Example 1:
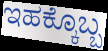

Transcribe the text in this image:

ಇಹಕ್ಕೊಬ್ಬ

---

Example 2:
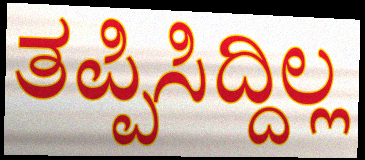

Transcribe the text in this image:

ತಪ್ಪಿಸಿದ್ದಿಲ್ಲ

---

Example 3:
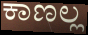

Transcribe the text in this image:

ಕಾಣಲ್ಲ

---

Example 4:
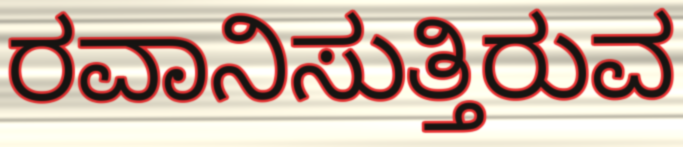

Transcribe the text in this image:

ರವಾನಿಸುತ್ತಿರುವ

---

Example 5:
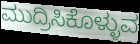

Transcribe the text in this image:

ಮುದ್ರಿಸಿಕೊಳ್ಳುವ